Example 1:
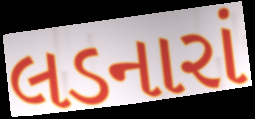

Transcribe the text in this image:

લડનારાં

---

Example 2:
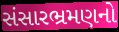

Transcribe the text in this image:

સંસારભ્રમણનો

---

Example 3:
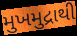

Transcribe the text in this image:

મુખમુદ્રાથી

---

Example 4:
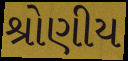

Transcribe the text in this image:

શ્રોણીય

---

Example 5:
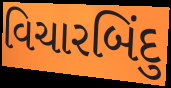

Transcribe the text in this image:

વિચારબિંદુ